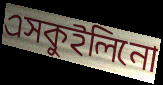
এসকুইলিনো